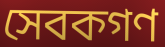
সেবকগণ